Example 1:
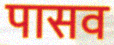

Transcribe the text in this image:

पासव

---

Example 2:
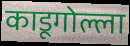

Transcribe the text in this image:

काडूगोल्ला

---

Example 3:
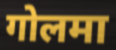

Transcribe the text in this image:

गोलमा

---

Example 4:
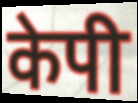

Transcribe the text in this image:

केपी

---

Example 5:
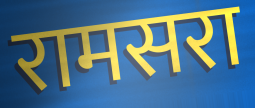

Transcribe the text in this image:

रामसरा